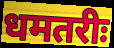
धमतरीः